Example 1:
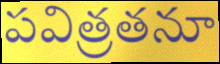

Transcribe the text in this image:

పవిత్రతనూ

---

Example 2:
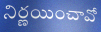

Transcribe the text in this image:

నిర్ణయించావో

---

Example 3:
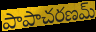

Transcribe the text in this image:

పాపాచరణమ్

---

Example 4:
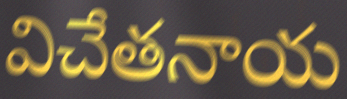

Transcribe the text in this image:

విచేతనాయ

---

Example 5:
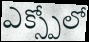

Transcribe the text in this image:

ఎక్స్పోలో